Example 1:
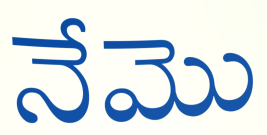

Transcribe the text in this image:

నేమొ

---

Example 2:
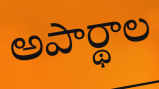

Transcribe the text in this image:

అపార్థాల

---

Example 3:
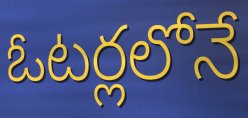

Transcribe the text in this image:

ఓటర్లలోనే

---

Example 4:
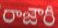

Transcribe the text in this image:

రాజౌరీ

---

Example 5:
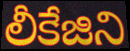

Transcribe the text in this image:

లీకేజిని